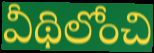
వీథిలోంచి